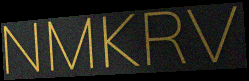
NMKRV